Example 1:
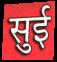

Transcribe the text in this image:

सुई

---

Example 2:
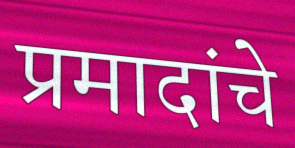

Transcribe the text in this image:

प्रमादांचे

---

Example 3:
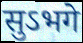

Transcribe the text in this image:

सुऽभगे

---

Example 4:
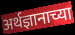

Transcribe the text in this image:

अर्थज्ञानाच्या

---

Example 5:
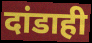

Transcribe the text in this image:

दांडाही